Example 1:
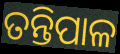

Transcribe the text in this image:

ତନ୍ତିପାଳ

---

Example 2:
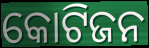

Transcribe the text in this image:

କୋଟିଜନ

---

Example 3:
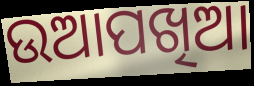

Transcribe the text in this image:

ଉଆପଖିଆ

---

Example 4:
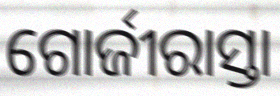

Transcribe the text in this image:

ଗୋର୍ଜୀରାସ୍ତା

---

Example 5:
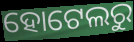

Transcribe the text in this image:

ହୋଟେଲରୁ